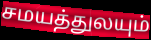
சமயத்துலயும்